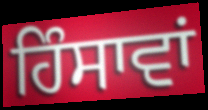
ਹਿੰਸਾਵਾਂ